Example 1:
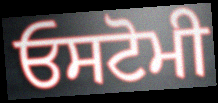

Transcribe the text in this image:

ਓਸਟੋਮੀ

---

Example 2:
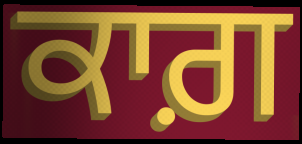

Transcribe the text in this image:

ਕਾਗ਼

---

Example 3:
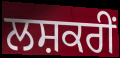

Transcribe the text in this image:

ਲਸ਼ਕਰੀਂ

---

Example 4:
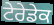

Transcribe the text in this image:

ਟੇਰੇਡੇਕ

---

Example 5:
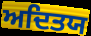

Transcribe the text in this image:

ਅਦਿਤਯ